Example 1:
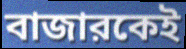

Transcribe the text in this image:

বাজারকেই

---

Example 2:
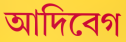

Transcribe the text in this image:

আদিবেগ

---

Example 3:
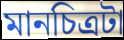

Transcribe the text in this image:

মানচিত্রটা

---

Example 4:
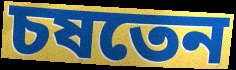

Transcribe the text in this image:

চষতেন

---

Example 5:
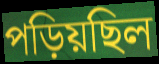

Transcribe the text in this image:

পড়িয়ছিল